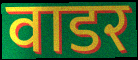
वाडर